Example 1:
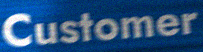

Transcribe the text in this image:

Customer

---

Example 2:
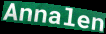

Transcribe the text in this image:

Annalen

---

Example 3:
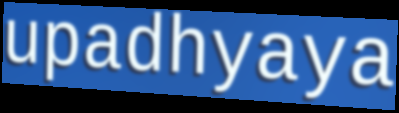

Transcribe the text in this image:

upadhyaya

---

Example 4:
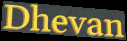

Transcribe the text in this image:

Dhevan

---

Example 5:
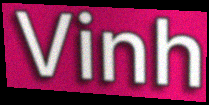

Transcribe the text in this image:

Vinh